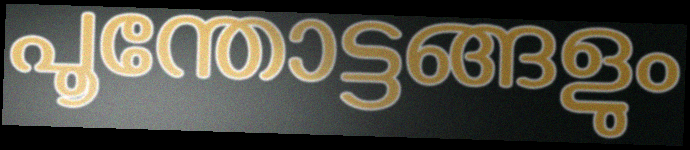
പൂന്തോട്ടങ്ങളും